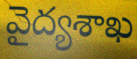
వైద్యశాఖ